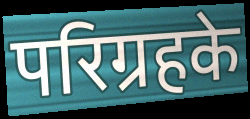
परिग्रहके